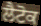
ਲੈਟੋਕ